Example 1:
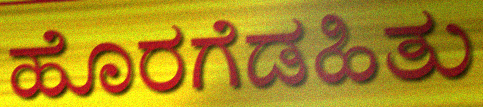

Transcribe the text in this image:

ಹೊರಗೆಡಹಿತು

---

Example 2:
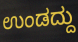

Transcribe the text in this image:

ಉಂಡದ್ದು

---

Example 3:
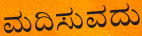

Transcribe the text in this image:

ಮದಿಸುವದು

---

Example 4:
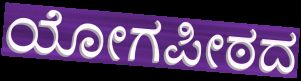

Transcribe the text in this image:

ಯೋಗಪೀಠದ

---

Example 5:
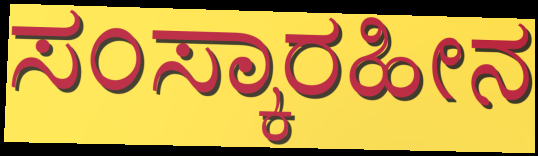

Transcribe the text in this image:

ಸಂಸ್ಕಾರಹೀನ